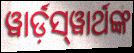
ୱାର୍ଡ଼ସ୍‌ୱାର୍ଥଙ୍କ